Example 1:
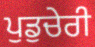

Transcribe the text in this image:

ਪੁਡੁਚੇਰੀ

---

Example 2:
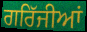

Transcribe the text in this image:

ਗਰਿੱਜੀਆਂ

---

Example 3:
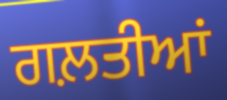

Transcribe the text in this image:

ਗਲ਼ਤੀਆਂ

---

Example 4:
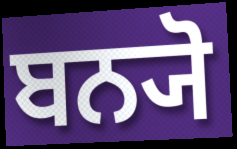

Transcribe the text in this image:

ਬਨ੍ਯੋ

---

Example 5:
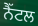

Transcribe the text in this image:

ਨੈੱਟਲ